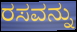
ರಸವನ್ನು